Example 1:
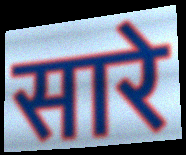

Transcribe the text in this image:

सारे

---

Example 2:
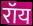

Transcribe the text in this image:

रॉय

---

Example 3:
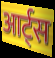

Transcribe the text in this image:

आर्ट्स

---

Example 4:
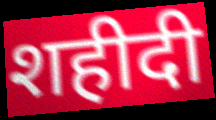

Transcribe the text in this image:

शहीदी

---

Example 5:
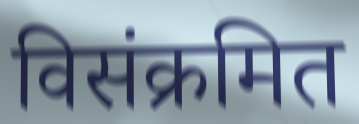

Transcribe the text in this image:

विसंक्रमित